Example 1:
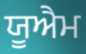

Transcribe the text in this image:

ਯੂਐਮ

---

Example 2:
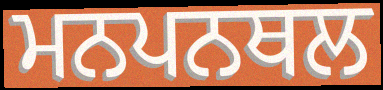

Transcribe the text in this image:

ਮਨਪਨਥਲ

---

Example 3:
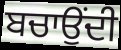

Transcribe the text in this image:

ਬਚਾਉਂਦੀ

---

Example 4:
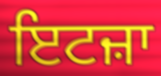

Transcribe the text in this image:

ਇਟਜ਼ਾ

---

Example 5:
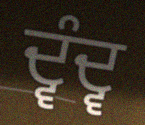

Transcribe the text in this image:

ਦ੍ਵੰਦ੍ਵ